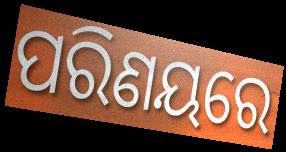
ପରିଣୟରେ